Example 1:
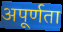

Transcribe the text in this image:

अपूर्णता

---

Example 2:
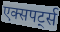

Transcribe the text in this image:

एक्सपर्ट्स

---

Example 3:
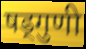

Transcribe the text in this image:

षड्गुणी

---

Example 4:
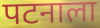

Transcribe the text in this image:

पटनाला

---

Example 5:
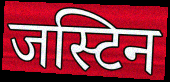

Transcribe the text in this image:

जस्टिन